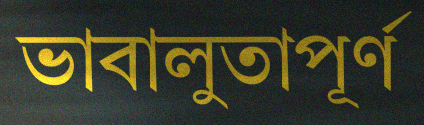
ভাবালুতাপূর্ণ